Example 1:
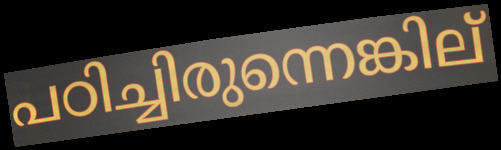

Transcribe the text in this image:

പഠിച്ചിരുന്നെങ്കില്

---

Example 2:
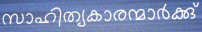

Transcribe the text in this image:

സാഹിത്യകാരന്മാർക്കു്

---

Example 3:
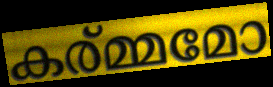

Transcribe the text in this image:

കര്മ്മമോ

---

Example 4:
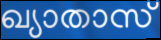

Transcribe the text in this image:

ഖ്യാതാസ്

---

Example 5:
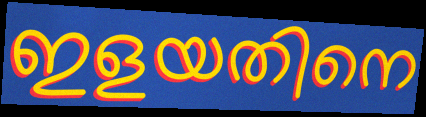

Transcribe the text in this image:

ഇളയതിനെ